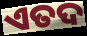
ଏତଦ